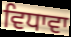
ਵਿਧਾਵਾ